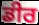
ਡੀਰ